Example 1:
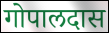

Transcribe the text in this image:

गोपालदास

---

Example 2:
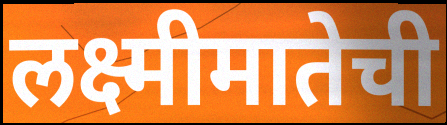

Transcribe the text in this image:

लक्ष्मीमातेची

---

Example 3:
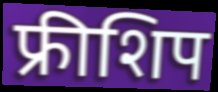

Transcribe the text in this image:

फ्रीशिप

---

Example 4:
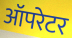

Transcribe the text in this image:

ऑपरेटर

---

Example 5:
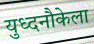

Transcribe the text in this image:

युध्दनौकेला